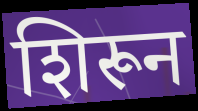
शिरून